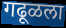
गढूळला